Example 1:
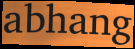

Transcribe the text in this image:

abhang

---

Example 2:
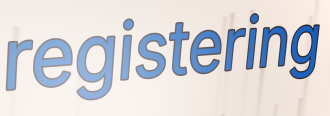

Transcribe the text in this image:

registering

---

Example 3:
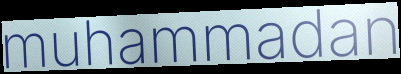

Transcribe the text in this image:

muhammadan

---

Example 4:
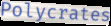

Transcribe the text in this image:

Polycrates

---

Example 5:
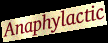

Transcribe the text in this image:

Anaphylactic